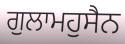
ਗੁਲਾਮਹੁਸੈਨ